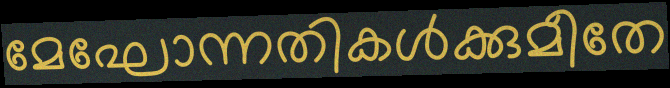
മേഘോന്നതികൾക്കുമീതേ